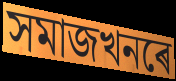
সমাজখনৰে